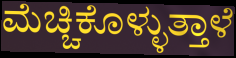
ಮೆಚ್ಚಿಕೊಳ್ಳುತ್ತಾಳೆ